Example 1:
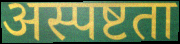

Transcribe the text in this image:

अस्पष्टता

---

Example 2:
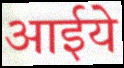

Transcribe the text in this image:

आईये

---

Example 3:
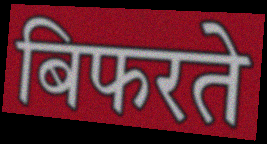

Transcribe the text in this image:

बिफरते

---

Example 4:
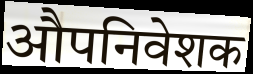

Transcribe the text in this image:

औपनिवेशक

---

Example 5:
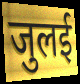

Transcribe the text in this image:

जुलई